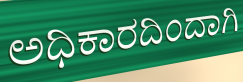
ಅಧಿಕಾರದಿಂದಾಗಿ